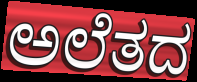
ಅಲೆತದ